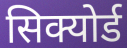
सिक्योर्ड